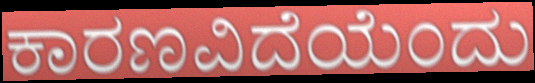
ಕಾರಣವಿದೆಯೆಂದು